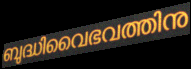
ബുദ്ധിവൈഭവത്തിനു